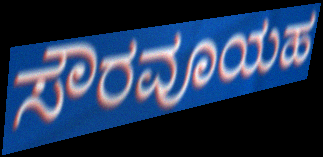
ಸೌರವೂಯಹ